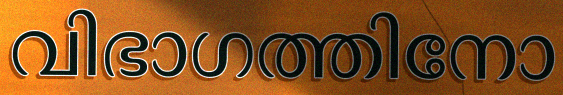
വിഭാഗത്തിനോ